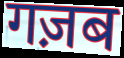
गज़ब